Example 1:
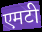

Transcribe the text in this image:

एमटी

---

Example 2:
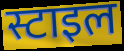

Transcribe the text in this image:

स्टाइल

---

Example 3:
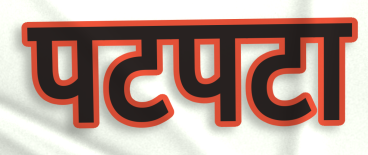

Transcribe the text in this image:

पटपटा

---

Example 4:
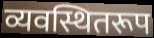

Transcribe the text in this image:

व्यवस्थितरूप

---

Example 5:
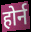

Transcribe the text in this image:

होर्न